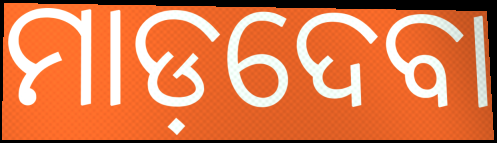
ମାଡ଼ଦେବା